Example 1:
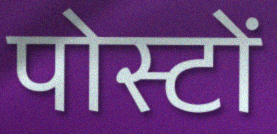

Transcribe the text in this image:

पोस्टों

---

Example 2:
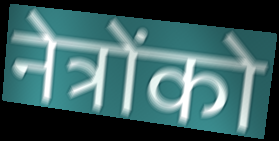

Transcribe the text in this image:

नेत्रोंको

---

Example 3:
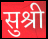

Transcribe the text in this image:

सुश्री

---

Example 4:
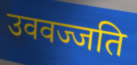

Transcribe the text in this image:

उववज्जति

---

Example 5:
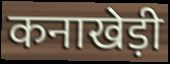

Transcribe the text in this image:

कनाखेड़ी